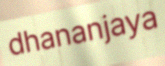
dhananjaya